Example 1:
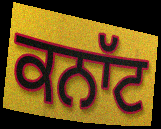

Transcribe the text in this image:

ਕਨਾੱਟ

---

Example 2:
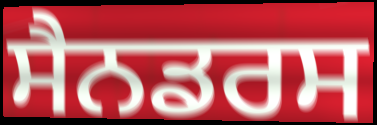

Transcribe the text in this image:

ਸੈਨਡਰਸ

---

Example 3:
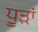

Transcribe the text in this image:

ਧੂਡ਼ਾਂ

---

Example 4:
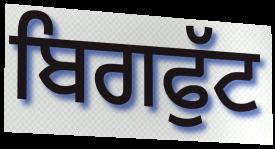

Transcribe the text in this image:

ਬਿਗਫੁੱਟ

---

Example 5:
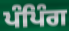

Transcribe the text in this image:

ਪੰਪਿੰਗ